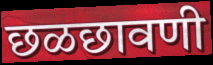
छळछावणी